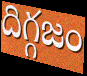
దిగ్గజం